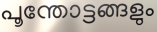
പൂന്തോട്ടങ്ങളും